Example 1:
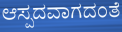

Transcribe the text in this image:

ಆಸ್ಪದವಾಗದಂತೆ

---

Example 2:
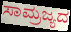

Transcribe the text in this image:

ಸಾಮ್ರಜ್ಯದ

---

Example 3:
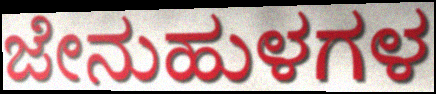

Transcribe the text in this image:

ಜೇನುಹುಳಗಳ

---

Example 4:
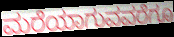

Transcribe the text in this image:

ಮರೆಯಾಗುವವರೆಗೂ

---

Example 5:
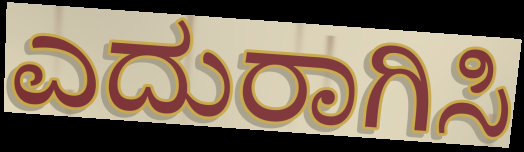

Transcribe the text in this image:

ಎದುರಾಗಿಸಿ